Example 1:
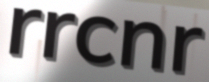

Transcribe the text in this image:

rrcnr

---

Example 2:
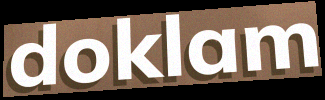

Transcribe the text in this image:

doklam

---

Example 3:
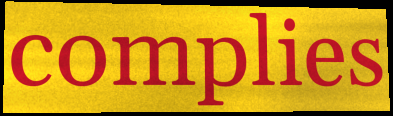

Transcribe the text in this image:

complies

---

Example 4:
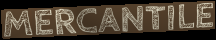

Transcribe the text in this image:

MERCANTILE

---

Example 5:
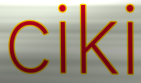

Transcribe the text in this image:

ciki